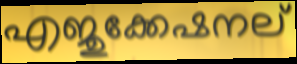
എജുക്കേഷനല്